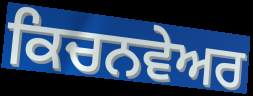
ਕਿਚਨਵੇਅਰ